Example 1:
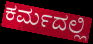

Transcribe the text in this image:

ಕರ್ಮದಲ್ಲಿ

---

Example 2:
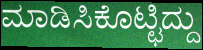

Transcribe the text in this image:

ಮಾಡಿಸಿಕೊಟ್ಟಿದ್ದು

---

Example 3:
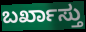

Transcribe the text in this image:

ಬರ್ಖಾಸ್ತು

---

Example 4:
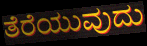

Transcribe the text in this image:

ತೆರೆಯುವುದು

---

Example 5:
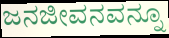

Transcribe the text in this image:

ಜನಜೀವನವನ್ನೂ